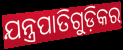
ଯନ୍ତ୍ରପାତିଗୁଡ଼ିକର